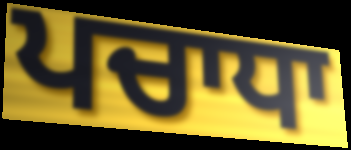
ਪਚਾਧਾ